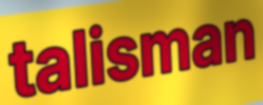
talisman